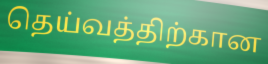
தெய்வத்திற்கான